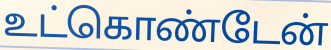
உட்கொண்டேன்